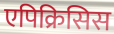
एपिक्रिसिस